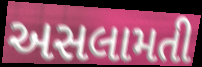
અસલામતી